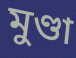
মুণ্ডা